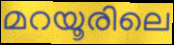
മറയൂരിലെ